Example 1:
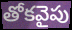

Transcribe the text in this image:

తోకవైపు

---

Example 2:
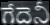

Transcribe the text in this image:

గేదెనీ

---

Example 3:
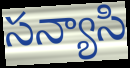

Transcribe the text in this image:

సన్యాసి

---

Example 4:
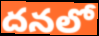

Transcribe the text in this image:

దనలో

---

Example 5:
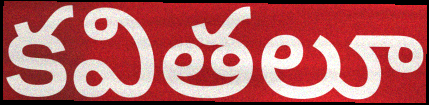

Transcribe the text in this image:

కవితలూ